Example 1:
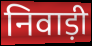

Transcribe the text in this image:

निवाड़ी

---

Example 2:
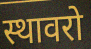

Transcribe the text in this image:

स्थावरो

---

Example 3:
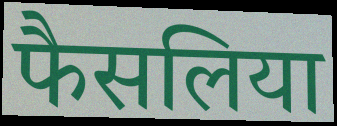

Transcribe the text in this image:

फैसलिया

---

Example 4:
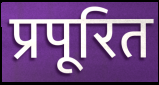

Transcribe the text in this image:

प्रपूरित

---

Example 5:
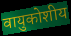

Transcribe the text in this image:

वायुकोशीय